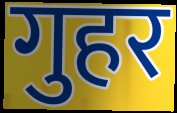
गुहर